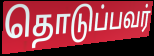
தொடுப்பவர்